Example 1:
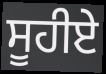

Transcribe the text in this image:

ਸੂਹੀਏ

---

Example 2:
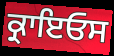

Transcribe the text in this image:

ਕ੍ਰਾਇਓਸ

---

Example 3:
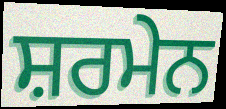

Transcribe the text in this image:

ਸ਼ਰਮੇਨ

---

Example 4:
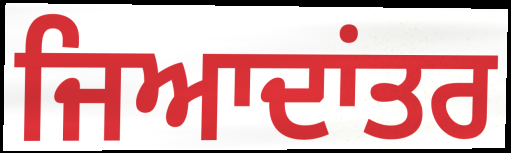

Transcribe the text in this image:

ਜਿਆਦਾਂਤਰ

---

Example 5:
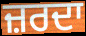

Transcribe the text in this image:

ਜ਼ਰਦਾ